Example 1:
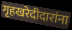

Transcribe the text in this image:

गृहखरेदीदारांना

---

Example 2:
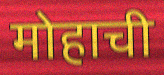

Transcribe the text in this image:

मोहाची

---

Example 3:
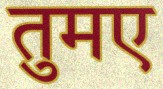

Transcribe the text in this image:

तुमए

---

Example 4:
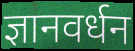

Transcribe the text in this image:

ज्ञानवर्धन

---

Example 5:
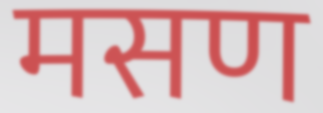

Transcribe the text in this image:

मसण